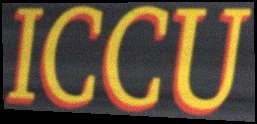
ICCU